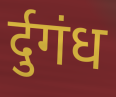
र्दुगंध